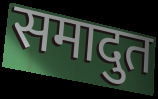
समादुत